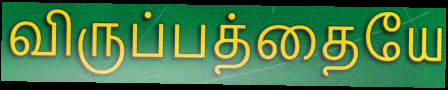
விருப்பத்தையே